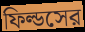
ফিল্ডসের